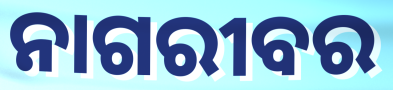
ନାଗରୀବର